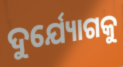
ଦୁର୍ଯ୍ୟୋଗକୁ